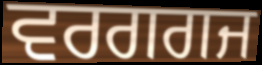
ਵਰਗਗਜ